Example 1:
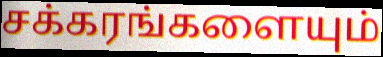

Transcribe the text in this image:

சக்கரங்களையும்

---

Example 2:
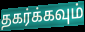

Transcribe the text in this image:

தகர்க்கவும்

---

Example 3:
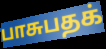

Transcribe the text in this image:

பாசுபதக்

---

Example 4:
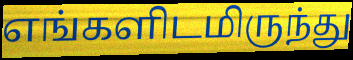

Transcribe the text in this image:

எங்களிடமிருந்து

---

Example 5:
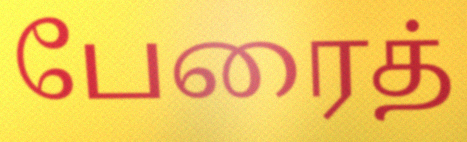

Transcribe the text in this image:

பேரைத்